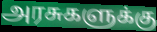
அரசுகளுக்கு